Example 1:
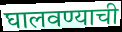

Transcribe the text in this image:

घालवण्याची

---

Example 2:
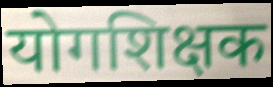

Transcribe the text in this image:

योगशिक्षक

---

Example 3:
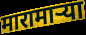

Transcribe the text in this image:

मारामाऱ्या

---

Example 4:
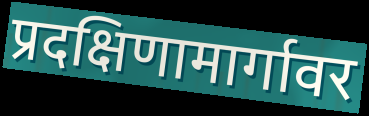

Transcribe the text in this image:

प्रदक्षिणामार्गावर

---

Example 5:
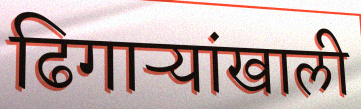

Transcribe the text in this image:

ढिगाऱ्यांखाली